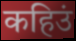
कहिउं